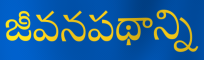
జీవనపథాన్ని